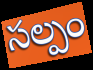
సల్పం